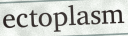
ectoplasm